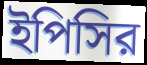
ইপিসির